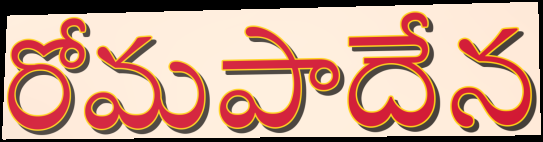
రోమపాదేన